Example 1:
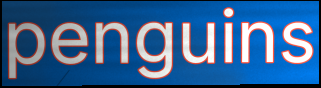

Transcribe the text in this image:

penguins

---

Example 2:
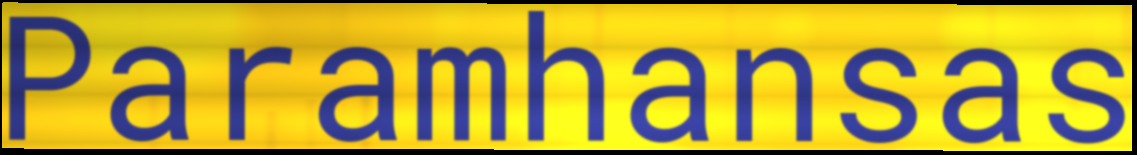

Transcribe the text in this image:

Paramhansas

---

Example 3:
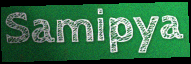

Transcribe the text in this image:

Samipya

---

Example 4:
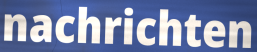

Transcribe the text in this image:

nachrichten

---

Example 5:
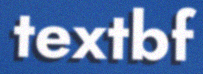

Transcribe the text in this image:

textbf